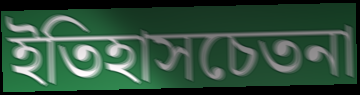
ইতিহাসচেতনা